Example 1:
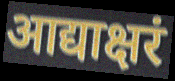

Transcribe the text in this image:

आद्याक्षरं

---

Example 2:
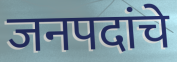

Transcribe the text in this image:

जनपदांचे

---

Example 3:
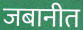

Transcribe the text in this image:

जबानीत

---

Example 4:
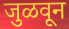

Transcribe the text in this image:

जुळवून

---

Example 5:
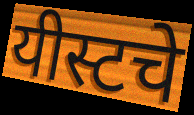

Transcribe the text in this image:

यीस्टचे